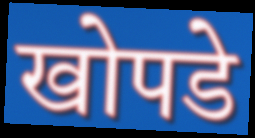
खोपडे